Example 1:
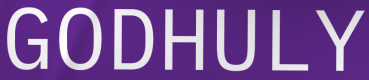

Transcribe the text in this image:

GODHULY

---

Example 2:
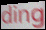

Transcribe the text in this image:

ding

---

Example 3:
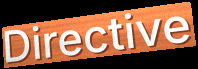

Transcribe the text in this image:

Directive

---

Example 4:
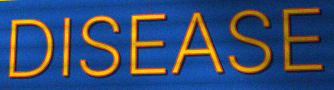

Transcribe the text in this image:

DISEASE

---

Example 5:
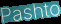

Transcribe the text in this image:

Pashto